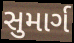
સુમાર્ગ